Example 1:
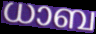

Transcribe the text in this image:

ധാബ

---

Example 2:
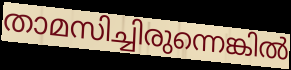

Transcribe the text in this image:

താമസിച്ചിരുന്നെങ്കിൽ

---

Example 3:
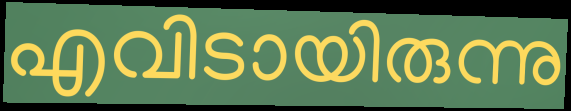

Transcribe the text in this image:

എവിടായിരുന്നു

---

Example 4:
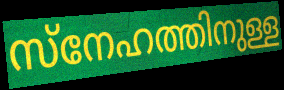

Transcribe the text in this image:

സ്നേഹത്തിനുള്ള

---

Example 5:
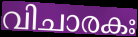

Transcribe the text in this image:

വിചാരകഃ